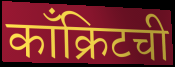
काँक्रिटची